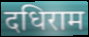
दधिराम